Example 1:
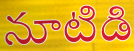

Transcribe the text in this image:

నూటిడి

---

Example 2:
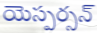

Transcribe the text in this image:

యెస్పర్సన్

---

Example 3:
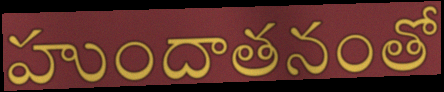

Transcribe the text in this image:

హుందాతనంతో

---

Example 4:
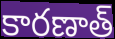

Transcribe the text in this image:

కారణాత్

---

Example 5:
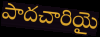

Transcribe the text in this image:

పాదచారియై